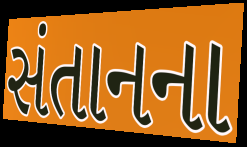
સંતાનના